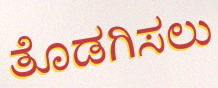
ತೊಡಗಿಸಲು